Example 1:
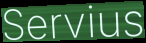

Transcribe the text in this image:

Servius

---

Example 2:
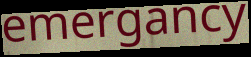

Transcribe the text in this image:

emergancy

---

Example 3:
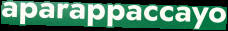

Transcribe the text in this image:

aparappaccayo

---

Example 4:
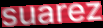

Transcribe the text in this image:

suarez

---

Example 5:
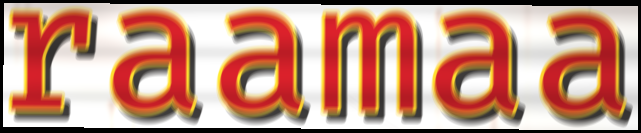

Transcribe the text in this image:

raamaa